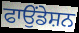
ਫਾਉਂਡੇਸ਼ਨ